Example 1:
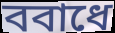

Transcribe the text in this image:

ববাধে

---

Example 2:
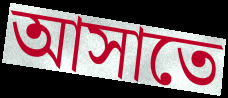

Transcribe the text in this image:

আসাতে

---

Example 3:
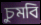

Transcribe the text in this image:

চুমবি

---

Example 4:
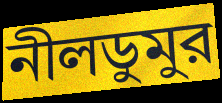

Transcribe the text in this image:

নীলডুমুর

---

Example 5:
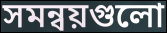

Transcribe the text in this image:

সমন্বয়গুলো